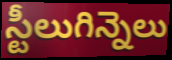
స్టీలుగిన్నెలు